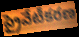
ప్రైవేటీకరణ